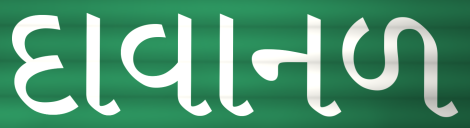
દાવાનળ